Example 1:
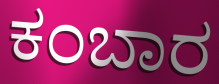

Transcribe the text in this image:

ಕಂಬಾರ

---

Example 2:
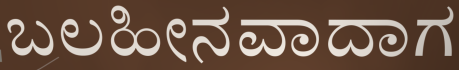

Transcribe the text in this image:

ಬಲಹೀನವಾದಾಗ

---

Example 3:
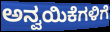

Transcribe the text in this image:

ಅನ್ವಯಿಕೆಗಳಿಗೆ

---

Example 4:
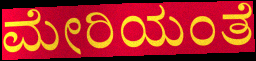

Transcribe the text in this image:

ಮೇರಿಯಂತೆ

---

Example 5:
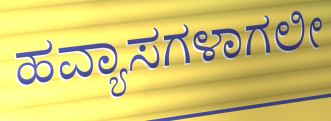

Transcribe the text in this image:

ಹವ್ಯಾಸಗಳಾಗಲೀ